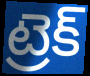
ట్రెక్